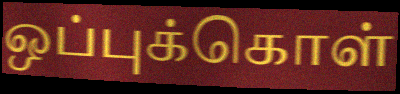
ஒப்புக்கொள்